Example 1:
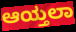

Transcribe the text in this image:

ಆಯ್ತಲಾ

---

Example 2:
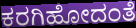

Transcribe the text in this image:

ಕರಗಿಹೋದಂತೆ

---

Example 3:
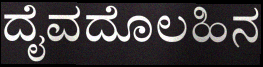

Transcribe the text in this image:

ದೈವದೊಲಹಿನ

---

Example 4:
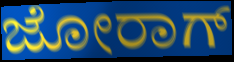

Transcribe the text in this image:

ಜೋರಾಗ್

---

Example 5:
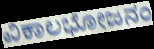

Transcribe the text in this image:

ವಿಕಾಲಭೋಜನಂ